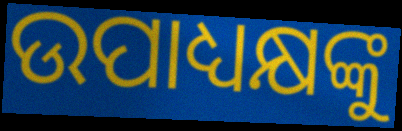
ଉପାଧ୍ୟକ୍ଷଙ୍କୁ